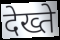
देख्ते